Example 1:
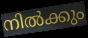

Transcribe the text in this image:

നിൽക്കും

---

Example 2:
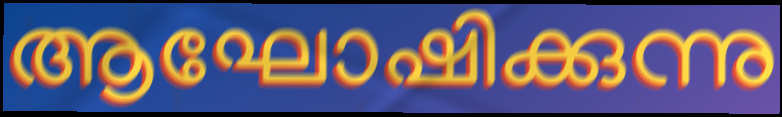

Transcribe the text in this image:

ആഘോഷിക്കുന്നു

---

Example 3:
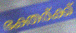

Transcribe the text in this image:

ഭക്തര്ക്ക്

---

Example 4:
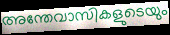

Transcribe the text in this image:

അന്തേവാസികളുടെയും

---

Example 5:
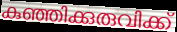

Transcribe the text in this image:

കുഞ്ഞിക്കുരുവിക്ക്